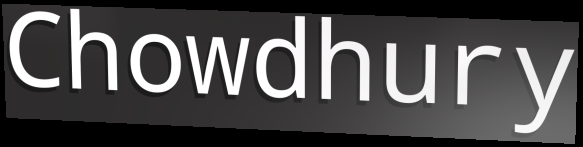
Chowdhury